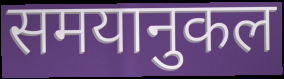
समयानुकल